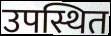
उपस्थित